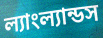
ল্যাংল্যান্ডস